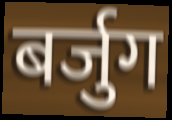
बर्जुग